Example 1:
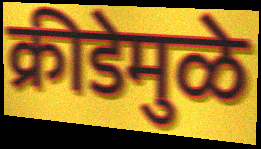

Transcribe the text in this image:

क्रीडेमुळे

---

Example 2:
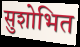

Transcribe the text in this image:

सुशोभित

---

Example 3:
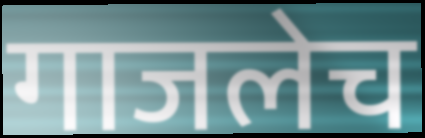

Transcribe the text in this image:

गाजलेच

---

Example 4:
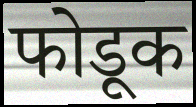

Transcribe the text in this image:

फोडूक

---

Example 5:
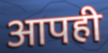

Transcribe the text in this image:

आपही